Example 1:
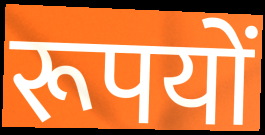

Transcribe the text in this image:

रूपयों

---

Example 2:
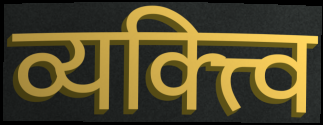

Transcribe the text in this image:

व्यक्त्त्वि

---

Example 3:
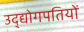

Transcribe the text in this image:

उद्द्योगपतियों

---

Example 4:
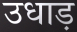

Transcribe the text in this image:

उधाड़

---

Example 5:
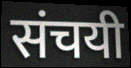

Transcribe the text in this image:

संचयी